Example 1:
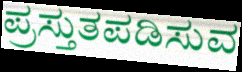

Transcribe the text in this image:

ಪ್ರಸ್ತುತಪಡಿಸುವ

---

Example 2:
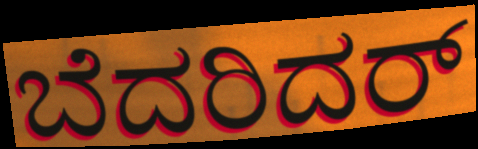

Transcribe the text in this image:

ಬೆದರಿದರ್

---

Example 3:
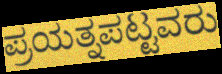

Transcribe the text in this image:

ಪ್ರಯತ್ನಪಟ್ಟವರು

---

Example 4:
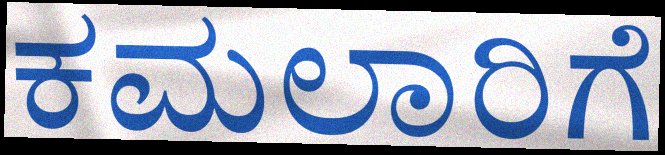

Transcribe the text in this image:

ಕಮಲಾರಿಗೆ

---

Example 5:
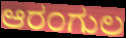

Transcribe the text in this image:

ಆರಂಗುಲ